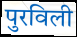
पुरविली